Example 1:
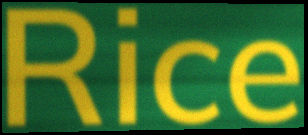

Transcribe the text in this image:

Rice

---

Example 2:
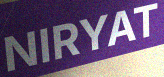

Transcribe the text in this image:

NIRYAT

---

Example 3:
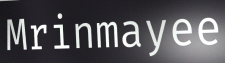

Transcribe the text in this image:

Mrinmayee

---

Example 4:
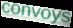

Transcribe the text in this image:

convoys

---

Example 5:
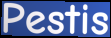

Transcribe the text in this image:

Pestis